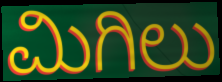
ಮಿಗಿಲು